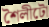
শৈলীটো